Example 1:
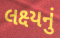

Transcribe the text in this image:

લક્ષ્યનું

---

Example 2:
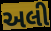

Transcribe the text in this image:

અલી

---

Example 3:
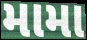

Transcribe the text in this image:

મામા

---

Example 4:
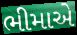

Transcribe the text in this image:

ભીમાએ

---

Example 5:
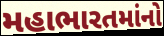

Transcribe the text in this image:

મહાભારતમાંનો